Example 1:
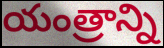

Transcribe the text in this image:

యంత్రాన్ని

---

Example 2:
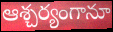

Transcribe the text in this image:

ఆశ్చర్యంగానూ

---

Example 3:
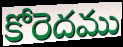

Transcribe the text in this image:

కోరెదము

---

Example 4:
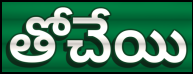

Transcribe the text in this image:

తోచేయి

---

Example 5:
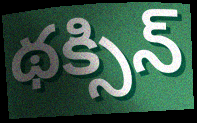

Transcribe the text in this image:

థక్సిన్